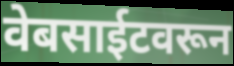
वेबसाईटवरून